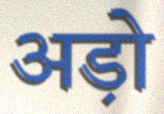
अड़ो